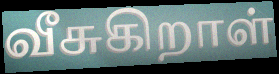
வீசுகிறாள்